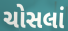
ચોસલાં